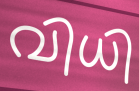
വിധി